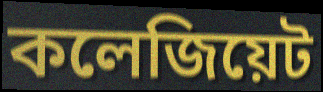
কলেজিয়েট